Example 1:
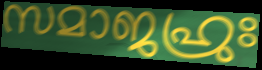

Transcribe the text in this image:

സമാജഹ്രുഃ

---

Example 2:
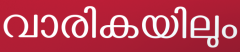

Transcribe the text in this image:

വാരികയിലും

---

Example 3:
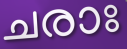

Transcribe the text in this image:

ചരാഃ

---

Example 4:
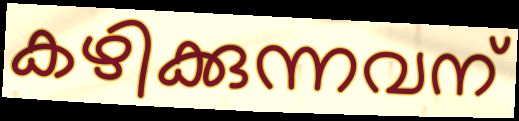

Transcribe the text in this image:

കഴിക്കുന്നവന്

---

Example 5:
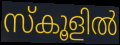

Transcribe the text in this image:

സ്കൂളിൽ